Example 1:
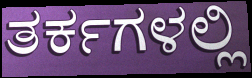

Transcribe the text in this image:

ತರ್ಕಗಳಲ್ಲಿ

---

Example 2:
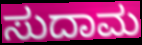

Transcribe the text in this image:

ಸುದಾಮ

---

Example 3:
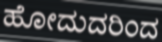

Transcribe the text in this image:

ಹೋದುದರಿಂದ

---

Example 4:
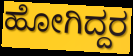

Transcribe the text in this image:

ಹೋಗಿದ್ದರ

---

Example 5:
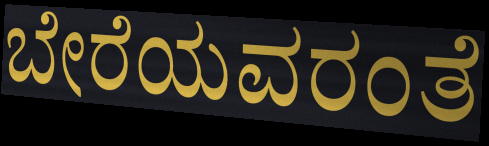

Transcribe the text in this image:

ಬೇರೆಯವರಂತೆ